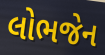
લોભજેન